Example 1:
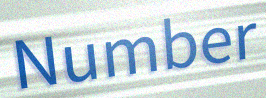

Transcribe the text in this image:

Number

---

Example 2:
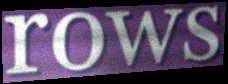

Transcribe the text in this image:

rows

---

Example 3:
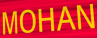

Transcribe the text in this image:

MOHAN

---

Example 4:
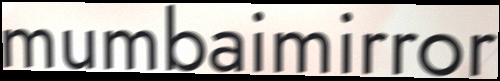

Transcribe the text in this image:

mumbaimirror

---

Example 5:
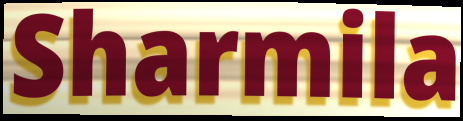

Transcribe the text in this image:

Sharmila